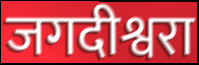
जगदीश्वरा